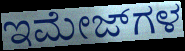
ಇಮೇಜ್‌ಗಳ